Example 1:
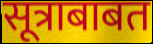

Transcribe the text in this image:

सूत्राबाबत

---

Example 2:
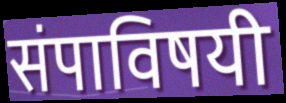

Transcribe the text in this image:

संपाविषयी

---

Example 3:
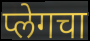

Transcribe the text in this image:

प्लेगचा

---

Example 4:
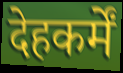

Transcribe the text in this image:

देहकर्में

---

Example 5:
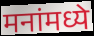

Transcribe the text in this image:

मनांमध्ये